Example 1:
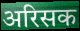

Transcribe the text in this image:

अरिसक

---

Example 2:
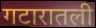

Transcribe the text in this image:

गटारातली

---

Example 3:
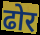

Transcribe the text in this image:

ढोर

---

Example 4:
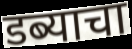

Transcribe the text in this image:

डब्याचा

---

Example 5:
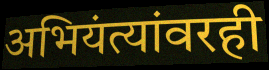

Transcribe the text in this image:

अभियंत्यांवरही